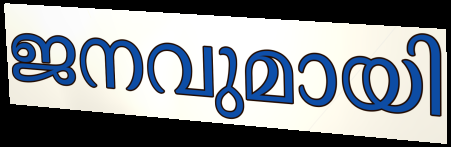
ജനവുമായി